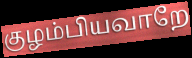
குழம்பியவாறே